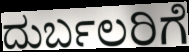
ದುರ್ಬಲರಿಗೆ